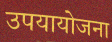
उपयायोजना